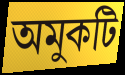
অমুকটি